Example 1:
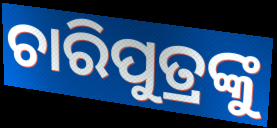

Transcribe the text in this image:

ଚାରିପୁତ୍ରଙ୍କୁ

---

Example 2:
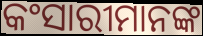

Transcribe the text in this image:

କଂସାରୀମାନଙ୍କ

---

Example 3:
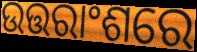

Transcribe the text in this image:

ଉତ୍ତରାଂଶରେ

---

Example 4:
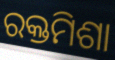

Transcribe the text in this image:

ରକ୍ତମିଶା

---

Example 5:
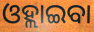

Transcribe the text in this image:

ଓହ୍ଲାଇବା